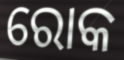
ରୋକ